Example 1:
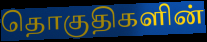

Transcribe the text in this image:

தொகுதிகளின்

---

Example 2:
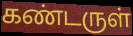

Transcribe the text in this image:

கண்டருள்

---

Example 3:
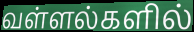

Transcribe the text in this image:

வள்ளல்களில்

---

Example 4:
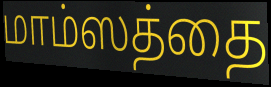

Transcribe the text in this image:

மாம்ஸத்தை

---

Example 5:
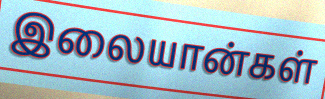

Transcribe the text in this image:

இலையான்கள்